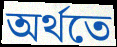
অৰ্থতে